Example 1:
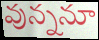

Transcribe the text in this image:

వున్ననూ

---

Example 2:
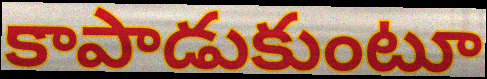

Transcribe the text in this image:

కాపాడుకుంటూ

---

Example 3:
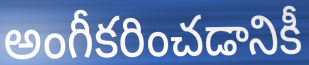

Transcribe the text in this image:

అంగీకరించడానికీ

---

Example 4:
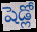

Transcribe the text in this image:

షెడ్లో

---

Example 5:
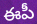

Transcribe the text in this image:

ఈపీ